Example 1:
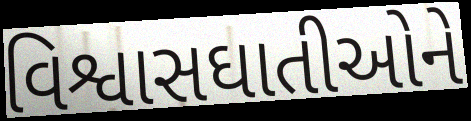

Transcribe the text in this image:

વિશ્વાસઘાતીઓને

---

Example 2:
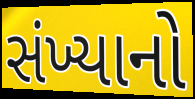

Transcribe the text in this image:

સંખ્યાનો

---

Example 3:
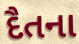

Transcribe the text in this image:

દૈતના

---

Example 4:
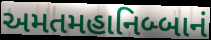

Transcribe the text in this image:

અમતમહાનિબ્બાનં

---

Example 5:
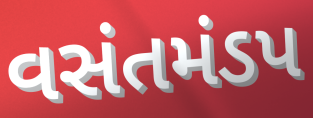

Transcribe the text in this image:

વસંતમંડપ